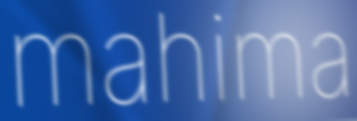
mahima